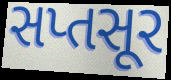
સપ્તસૂર